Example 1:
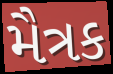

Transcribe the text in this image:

મૈત્રક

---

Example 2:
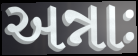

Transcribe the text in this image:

અન્નાઃ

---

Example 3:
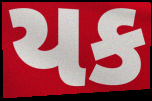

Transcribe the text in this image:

યક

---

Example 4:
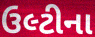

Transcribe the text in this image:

ઉલ્ટીના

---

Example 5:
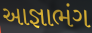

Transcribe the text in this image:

આજ્ઞાભંગ